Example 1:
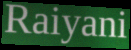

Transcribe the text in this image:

Raiyani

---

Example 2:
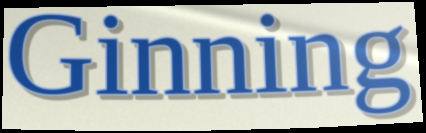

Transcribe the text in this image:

Ginning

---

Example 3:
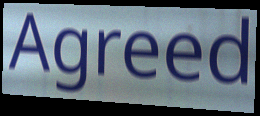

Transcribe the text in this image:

Agreed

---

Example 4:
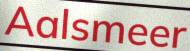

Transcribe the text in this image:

Aalsmeer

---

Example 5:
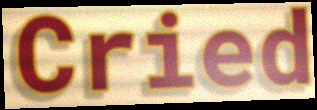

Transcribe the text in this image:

Cried